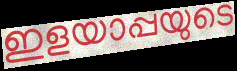
ഇളയാപ്പയുടെ